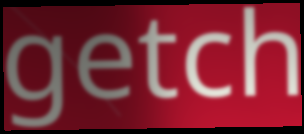
getch